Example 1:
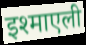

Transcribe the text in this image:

इश्माएली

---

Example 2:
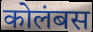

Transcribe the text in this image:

कोलंबस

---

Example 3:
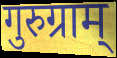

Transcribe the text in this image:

गुरुग्राम्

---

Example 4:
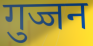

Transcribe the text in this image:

गुज्जन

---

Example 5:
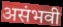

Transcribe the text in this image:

असंभवी